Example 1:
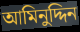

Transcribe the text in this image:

আমিনুদ্দিন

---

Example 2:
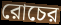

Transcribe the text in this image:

রোচের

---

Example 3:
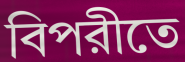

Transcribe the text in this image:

বিপরীতে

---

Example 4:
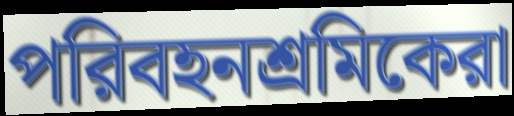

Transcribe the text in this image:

পরিবহনশ্রমিকেরা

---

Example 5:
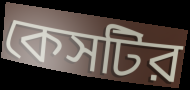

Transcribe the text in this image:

কেসটির